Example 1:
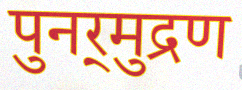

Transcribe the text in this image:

पुनर्मुद्रण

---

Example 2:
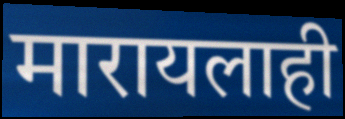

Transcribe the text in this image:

मारायलाही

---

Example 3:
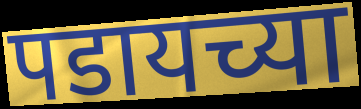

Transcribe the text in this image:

पडायच्या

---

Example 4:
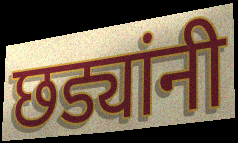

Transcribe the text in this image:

छड्यांनी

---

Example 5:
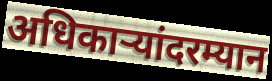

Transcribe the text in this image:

अधिकाऱ्यांदरम्यान